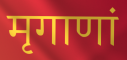
मृगाणां